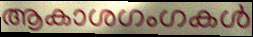
ആകാശഗംഗകൾ